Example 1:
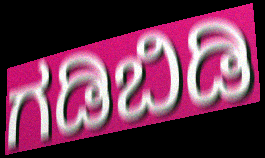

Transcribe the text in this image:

ಗಡಿಬಿಡಿ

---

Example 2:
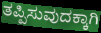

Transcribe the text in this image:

ತಪ್ಪಿಸುವುದಕ್ಕಾಗಿ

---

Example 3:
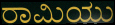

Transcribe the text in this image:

ರಾಮಿಯು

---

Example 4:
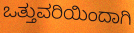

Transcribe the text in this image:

ಒತ್ತುವರಿಯಿಂದಾಗಿ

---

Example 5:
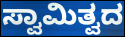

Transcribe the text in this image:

ಸ್ವಾಮಿತ್ವದ